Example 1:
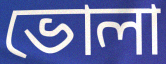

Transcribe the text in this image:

ভোলা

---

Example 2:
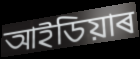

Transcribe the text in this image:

আইডিয়াৰ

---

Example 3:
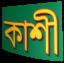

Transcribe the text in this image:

কাশী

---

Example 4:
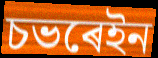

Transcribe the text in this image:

চভৰেইন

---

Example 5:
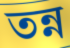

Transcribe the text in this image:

তন্ন